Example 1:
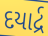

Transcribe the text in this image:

દયાર્દ્ર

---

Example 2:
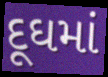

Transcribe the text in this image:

દૂઘમાં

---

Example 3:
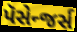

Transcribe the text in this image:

પૅસેન્જર્સ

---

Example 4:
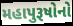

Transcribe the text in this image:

મહાપુરૂષોનો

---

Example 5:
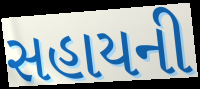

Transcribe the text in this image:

સહાયની